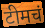
टीमचं